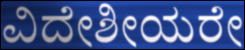
ವಿದೇಶೀಯರೇ